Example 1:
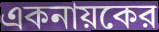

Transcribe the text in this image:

একনায়কের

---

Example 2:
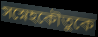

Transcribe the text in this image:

সস্নেহকৌতুকে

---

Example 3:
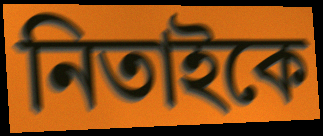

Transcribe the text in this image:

নিতাইকে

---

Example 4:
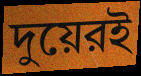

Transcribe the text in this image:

দুয়েরই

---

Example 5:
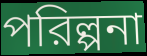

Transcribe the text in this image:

পরিল্পনা